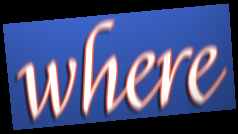
where